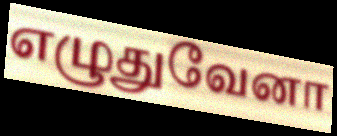
எழுதுவேனா